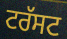
ਟਰੱਸਟ